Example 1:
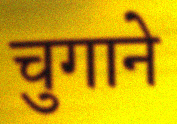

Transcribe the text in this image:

चुगाने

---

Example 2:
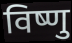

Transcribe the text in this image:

विष्णु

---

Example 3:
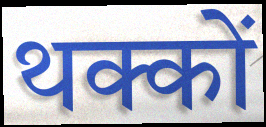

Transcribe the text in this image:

थक्कों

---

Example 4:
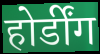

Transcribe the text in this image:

होर्डींग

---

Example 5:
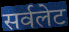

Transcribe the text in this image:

सर्वलेट